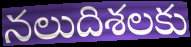
నలుదిశలకు